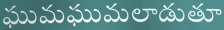
ఘుమఘుమలాడుతూ